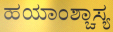
ಹಯಾಂಶ್ಚಾಸ್ಯ